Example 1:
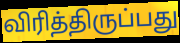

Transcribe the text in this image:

விரித்திருப்பது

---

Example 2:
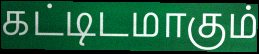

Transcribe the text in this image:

கட்டிடமாகும்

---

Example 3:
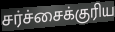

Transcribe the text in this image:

சர்ச்சைக்குரிய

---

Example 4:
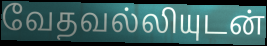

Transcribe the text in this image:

வேதவல்லியுடன்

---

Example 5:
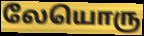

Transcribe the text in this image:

லேயொரு